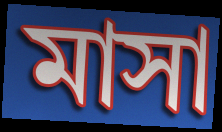
মাসা